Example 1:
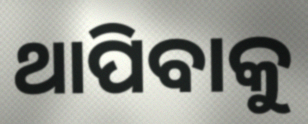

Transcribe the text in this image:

ଥାପିବାକୁ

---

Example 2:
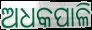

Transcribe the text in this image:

ଅଧକପାଳି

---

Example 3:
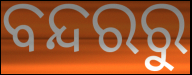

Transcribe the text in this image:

ବନ୍ଦରରୁ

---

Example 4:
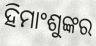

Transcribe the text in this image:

ହିମାଂଶୁଙ୍କର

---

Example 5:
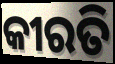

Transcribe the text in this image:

କୀରତି